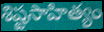
శిష్టసాహిత్యం